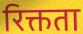
रिक्तता